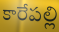
కారేపల్లి